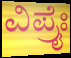
ವಿಪ್ರೈಃ